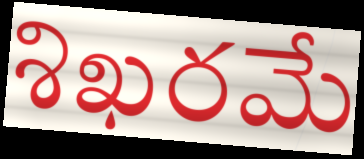
శిఖరమే